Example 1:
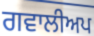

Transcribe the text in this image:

ਗਵਾਲੀਅਪ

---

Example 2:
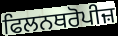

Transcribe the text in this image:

ਫਿਲਨਥਰੋਪੀਜ਼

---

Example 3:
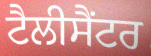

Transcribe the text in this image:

ਟੈਲੀਸੈਂਟਰ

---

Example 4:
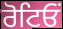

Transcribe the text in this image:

ਰੋਟਿਓਂ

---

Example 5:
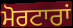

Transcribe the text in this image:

ਮੋਰਟਾਰਾਂ